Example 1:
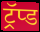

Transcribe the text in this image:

ट्रॅप्ड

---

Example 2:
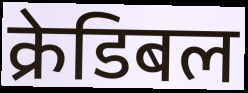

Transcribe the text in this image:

क्रेडिबल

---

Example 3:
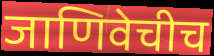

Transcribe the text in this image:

जाणिवेचीच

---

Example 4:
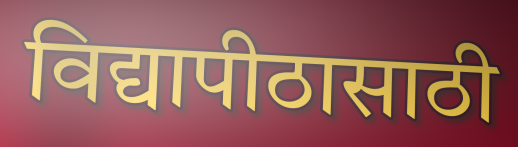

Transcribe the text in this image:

विद्यापीठासाठी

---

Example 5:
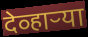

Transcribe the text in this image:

देव्हाऱ्या